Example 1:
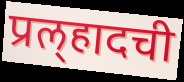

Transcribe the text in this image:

प्रल्हादची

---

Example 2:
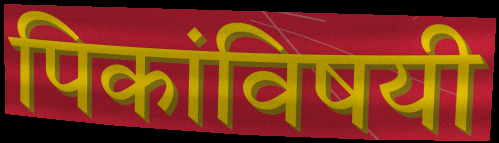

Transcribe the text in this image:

पिकांविषयी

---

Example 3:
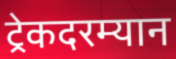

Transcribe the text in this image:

ट्रेकदरम्यान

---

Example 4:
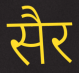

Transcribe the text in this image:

सैर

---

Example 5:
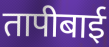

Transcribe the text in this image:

तापीबाई